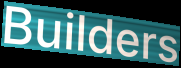
Builders